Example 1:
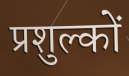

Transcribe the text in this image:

प्रशुल्कों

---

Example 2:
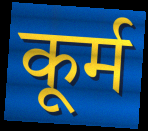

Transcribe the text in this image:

कूर्म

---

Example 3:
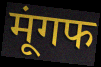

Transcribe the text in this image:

मूंगफ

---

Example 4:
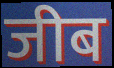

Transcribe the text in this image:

जीब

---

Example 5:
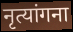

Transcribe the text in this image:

नृत्यांगना